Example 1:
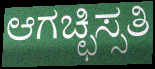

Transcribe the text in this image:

ಆಗಚ್ಛಿಸ್ಸತಿ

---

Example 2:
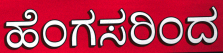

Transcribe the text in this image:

ಹೆಂಗಸರಿಂದ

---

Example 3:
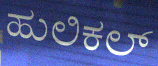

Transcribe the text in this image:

ಹುಲಿಕಲ್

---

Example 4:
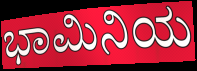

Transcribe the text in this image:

ಭಾಮಿನಿಯ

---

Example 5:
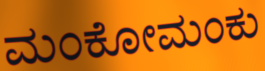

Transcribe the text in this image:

ಮಂಕೋಮಂಕು